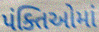
પંક્તિઓમાં